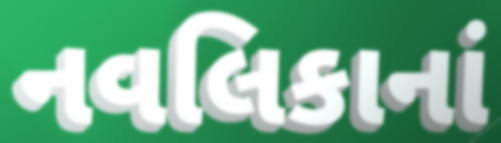
નવલિકાનાં